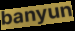
banyun